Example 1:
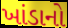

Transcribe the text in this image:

ખાંડાનો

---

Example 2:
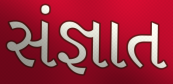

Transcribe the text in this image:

સંજ્ઞાત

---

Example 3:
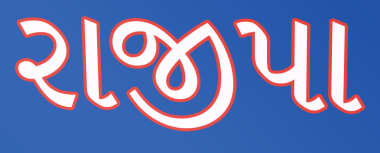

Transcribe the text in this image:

રાજીપા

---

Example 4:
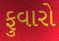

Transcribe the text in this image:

ફુવારો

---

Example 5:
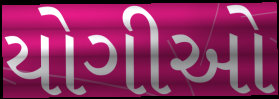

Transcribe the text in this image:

યોગીઓ